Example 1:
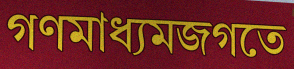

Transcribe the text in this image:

গণমাধ্যমজগতে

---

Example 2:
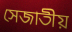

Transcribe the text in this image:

সেজাতীয়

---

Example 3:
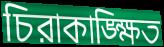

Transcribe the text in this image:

চিরাকাঙ্ক্ষিত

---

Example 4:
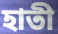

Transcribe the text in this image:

হাতী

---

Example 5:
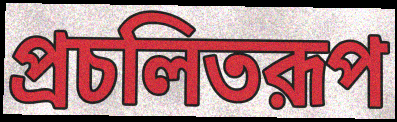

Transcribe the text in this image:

প্রচলিতরূপ